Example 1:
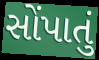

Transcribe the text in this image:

સોંપાતું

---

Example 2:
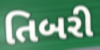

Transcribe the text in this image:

તિબરી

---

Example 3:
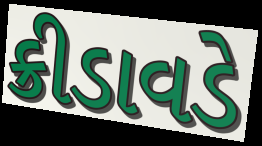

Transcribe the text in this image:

ક્રીડાવડે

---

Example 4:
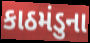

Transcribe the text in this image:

કાઠમંડુના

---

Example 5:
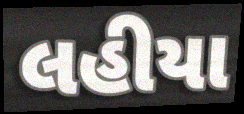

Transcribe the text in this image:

લહીયા